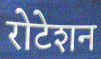
रोटेशन